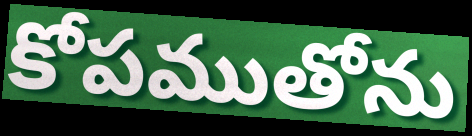
కోపముతోను